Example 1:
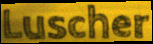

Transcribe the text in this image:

Luscher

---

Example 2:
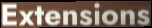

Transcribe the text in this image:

Extensions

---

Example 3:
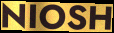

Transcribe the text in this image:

NIOSH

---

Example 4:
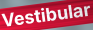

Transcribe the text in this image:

Vestibular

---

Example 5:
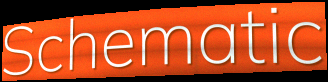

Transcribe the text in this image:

Schematic